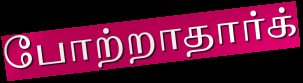
போற்றாதார்க்